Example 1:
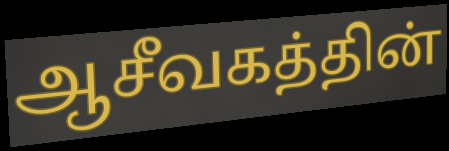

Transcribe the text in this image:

ஆசீவகத்தின்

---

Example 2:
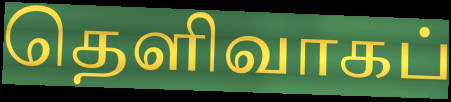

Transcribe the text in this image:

தெளிவாகப்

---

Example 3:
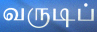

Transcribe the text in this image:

வருடிப்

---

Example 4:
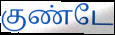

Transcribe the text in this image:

குண்டே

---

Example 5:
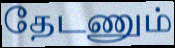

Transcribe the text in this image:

தேடணும்